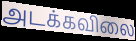
அடக்கவிலை